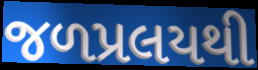
જળપ્રલયથી